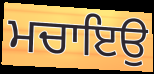
ਮਚਾਇਉ